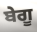
ਬੇਗੂ